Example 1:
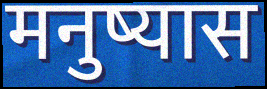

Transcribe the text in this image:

मनुष्यास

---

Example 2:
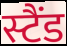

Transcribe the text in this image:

स्‍टैंड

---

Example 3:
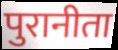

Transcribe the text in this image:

पुरानीता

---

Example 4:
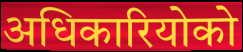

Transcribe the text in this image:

अधिकारियोको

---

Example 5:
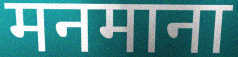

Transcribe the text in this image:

मनमाना